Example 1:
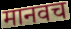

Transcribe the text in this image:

मानवच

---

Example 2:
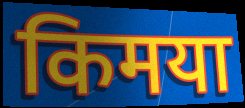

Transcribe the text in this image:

किमया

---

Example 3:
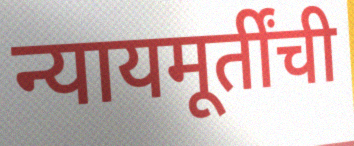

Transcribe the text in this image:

न्यायमूर्तींची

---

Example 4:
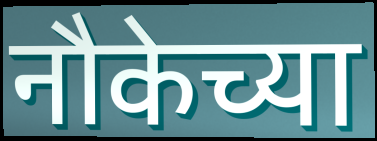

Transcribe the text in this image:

नौकेच्या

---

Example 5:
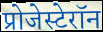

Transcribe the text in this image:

प्रोजेस्टेरॉन